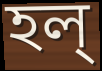
হল্